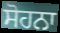
ਸੋਹਨਾ